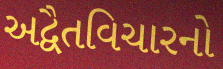
અદ્વૈતવિચારનો